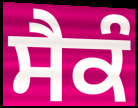
ਸੈਕੰ